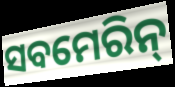
ସବମେରିନ୍